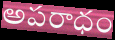
అపరాధం